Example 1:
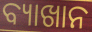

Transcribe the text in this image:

ବ୍ୟାଖାନ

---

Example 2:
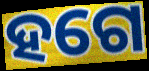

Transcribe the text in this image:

ହଗେ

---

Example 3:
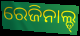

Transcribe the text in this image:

ରେଜିନାଲ୍ଡ୍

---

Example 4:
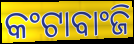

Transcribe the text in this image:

କଂଟାବାଂଜି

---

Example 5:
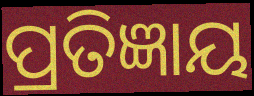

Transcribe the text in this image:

ପ୍ରତିଜ୍ଞାୟ